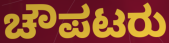
ಚೌಪಟರು